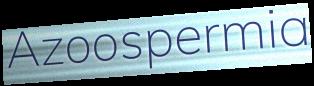
Azoospermia